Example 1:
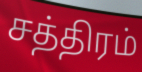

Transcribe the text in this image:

சத்திரம்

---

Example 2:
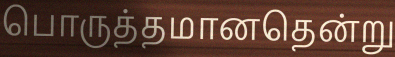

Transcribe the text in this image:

பொருத்தமானதென்று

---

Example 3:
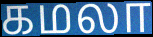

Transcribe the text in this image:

கமலா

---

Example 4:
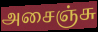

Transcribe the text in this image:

அசைஞ்சு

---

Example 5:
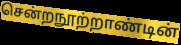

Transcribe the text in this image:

சென்றநூற்றாண்டின்